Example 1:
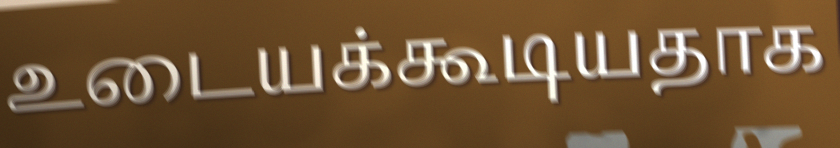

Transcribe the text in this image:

உடையக்கூடியதாக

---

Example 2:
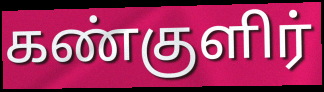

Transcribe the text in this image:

கண்குளிர்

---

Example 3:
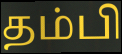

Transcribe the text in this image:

தம்பி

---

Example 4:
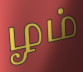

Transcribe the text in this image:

ழம்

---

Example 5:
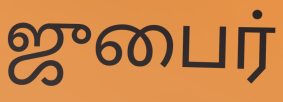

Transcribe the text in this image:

ஜுபைர்